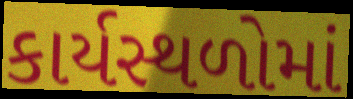
કાર્યસ્થળોમાં